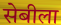
सेबीला